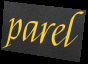
parel